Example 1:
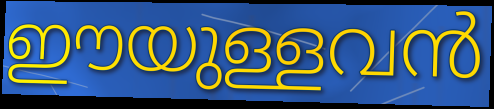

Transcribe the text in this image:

ഈയുള്ളവൻ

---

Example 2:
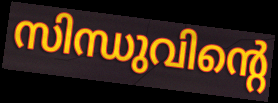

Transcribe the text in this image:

സിന്ധുവിന്റെ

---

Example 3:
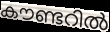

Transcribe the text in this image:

കൗണ്ടറിൽ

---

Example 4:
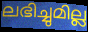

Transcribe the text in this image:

ലഭിച്ചുമില്ല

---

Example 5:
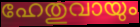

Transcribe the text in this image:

ഹേതുവായും